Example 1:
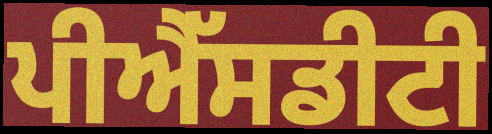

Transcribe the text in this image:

ਪੀਐੱਸਡੀਟੀ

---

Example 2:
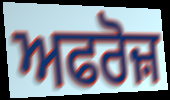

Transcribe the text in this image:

ਅਫਰੋਜ਼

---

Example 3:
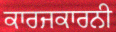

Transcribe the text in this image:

ਕਾਰਜਕਾਰਨੀ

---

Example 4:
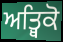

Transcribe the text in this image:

ਅਤ੍ਥਿਕੋ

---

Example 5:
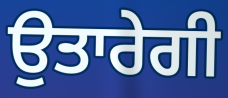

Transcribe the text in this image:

ਉਤਾਰੇਗੀ